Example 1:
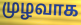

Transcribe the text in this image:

முழவாக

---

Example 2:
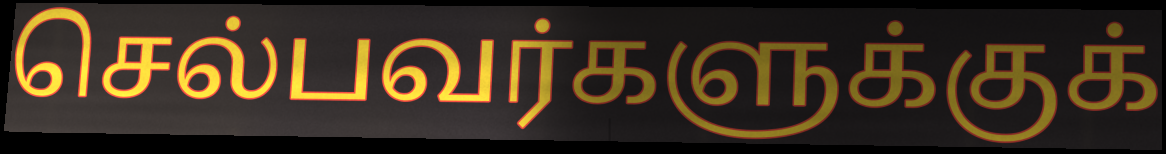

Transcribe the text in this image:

செல்பவர்களுக்குக்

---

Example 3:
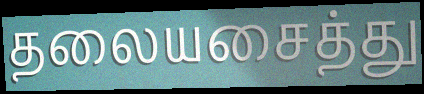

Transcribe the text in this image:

தலையசைத்து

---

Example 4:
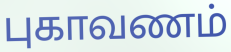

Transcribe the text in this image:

புகாவணம்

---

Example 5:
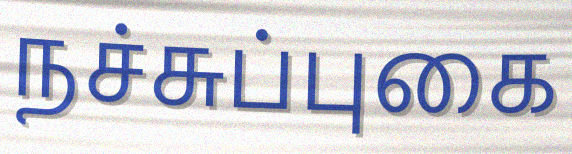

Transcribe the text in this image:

நச்சுப்புகை